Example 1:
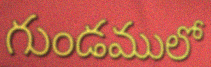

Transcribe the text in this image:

గుండములో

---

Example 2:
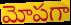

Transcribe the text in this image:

మోపగా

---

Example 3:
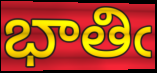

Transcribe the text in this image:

భాతిఁ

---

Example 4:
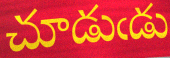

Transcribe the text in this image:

చూడుఁడు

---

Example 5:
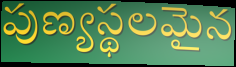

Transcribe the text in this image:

పుణ్యస్థలమైన